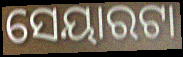
ସେୟାରଟା